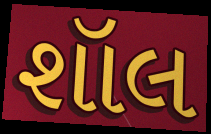
શૉલ